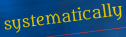
systematically